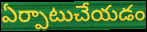
ఏర్పాటుచేయడం